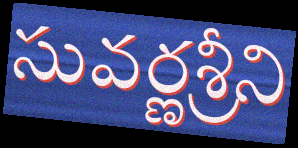
సువర్ణశ్రీని